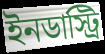
ইনডাস্ট্রি